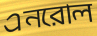
এনরোল